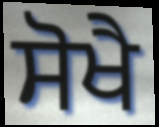
ਸੋਖੈ